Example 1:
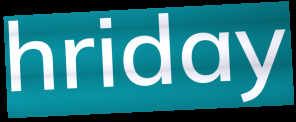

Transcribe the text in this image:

hriday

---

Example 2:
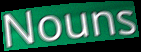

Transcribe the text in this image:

Nouns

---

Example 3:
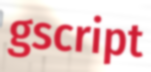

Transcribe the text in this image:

gscript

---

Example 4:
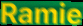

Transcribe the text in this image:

Ramie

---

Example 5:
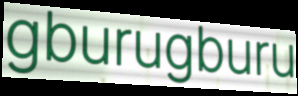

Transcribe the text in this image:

gburugburu